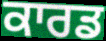
ਕਾਰਡ